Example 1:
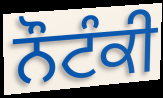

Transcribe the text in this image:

ਨੌਟੰਕੀ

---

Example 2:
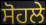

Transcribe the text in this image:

ਸੋਹਲੇ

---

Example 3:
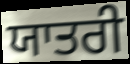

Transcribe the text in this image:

ਯਾਤਰੀ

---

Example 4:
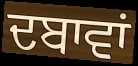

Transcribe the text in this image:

ਦਬਾਵਾਂ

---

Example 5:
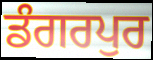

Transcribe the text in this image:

ਡੰਗਰਪੁਰ